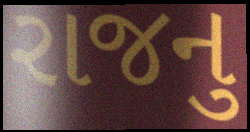
રાજનુ